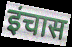
इंचास